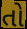
તો